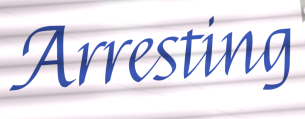
Arresting